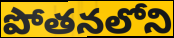
పోతనలోని